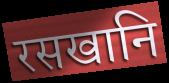
रसखानि